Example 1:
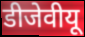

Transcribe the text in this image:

डीजेवीयू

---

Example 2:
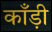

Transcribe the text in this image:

काँड़ी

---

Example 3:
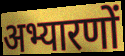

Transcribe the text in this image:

अभ्यारणों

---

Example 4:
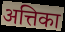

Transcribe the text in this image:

अत्तिका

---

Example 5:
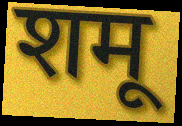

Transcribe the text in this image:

शमू